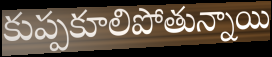
కుప్పకూలిపోతున్నాయి